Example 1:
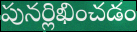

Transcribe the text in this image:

పునర్లిఖించడం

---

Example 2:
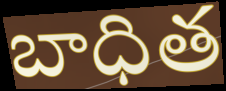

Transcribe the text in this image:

బాధిత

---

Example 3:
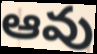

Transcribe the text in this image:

ఆవు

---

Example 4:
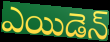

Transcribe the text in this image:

ఎయిడెన్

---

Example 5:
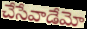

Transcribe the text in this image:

చేసేవాడేమో